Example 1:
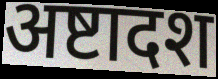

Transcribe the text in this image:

अष्टादश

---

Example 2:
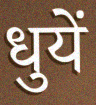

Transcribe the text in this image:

धुयें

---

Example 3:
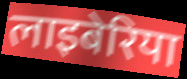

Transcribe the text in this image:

लाइबेरिया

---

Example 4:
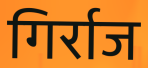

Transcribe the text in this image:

गिर्राज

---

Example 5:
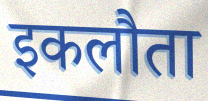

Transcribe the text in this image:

इकलौता